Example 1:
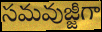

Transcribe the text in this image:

సమవుజ్జీగా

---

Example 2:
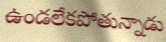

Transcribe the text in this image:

ఉండలేకపోతున్నాడు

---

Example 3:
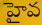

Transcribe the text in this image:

హైవ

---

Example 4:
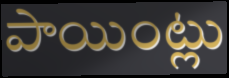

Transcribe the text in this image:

పాయింట్లు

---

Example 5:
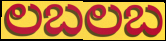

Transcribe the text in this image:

లబలబ